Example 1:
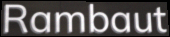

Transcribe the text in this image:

Rambaut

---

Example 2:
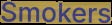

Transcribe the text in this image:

Smokers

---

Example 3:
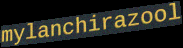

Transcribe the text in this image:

mylanchirazool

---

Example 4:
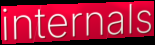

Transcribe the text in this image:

internals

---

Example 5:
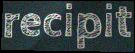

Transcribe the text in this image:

recipit